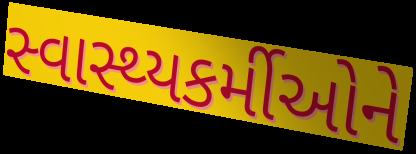
સ્વાસ્થ્યકર્મીઓને